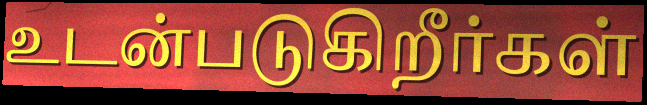
உடன்படுகிறீர்கள்